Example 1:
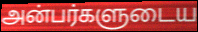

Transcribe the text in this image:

அன்பர்களுடைய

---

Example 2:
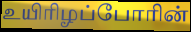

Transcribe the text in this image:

உயிரிழப்போரின்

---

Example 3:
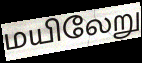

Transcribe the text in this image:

மயிலேறு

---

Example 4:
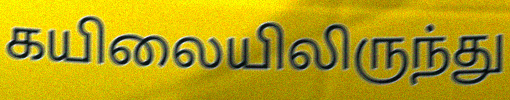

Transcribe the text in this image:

கயிலையிலிருந்து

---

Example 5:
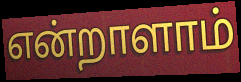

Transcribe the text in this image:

என்றாளாம்